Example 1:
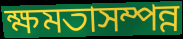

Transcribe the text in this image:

ক্ষমতাসম্পন্ন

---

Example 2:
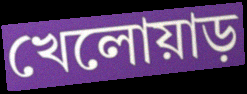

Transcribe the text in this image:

খেলোয়াড়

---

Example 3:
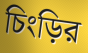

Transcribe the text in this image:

চিংড়ির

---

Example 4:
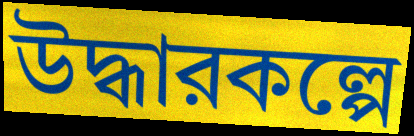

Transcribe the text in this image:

উদ্ধারকল্পে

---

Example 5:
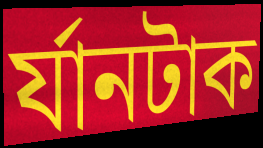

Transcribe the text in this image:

র্যানটাক